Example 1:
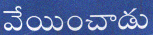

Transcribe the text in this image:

వేయించాడు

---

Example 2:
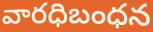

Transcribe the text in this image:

వారధిబంధన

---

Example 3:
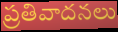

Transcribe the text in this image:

ప్రతివాదనలు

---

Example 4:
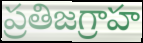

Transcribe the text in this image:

ప్రతిజగ్రాహ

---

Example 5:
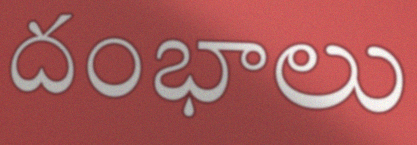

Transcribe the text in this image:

దంభాలు